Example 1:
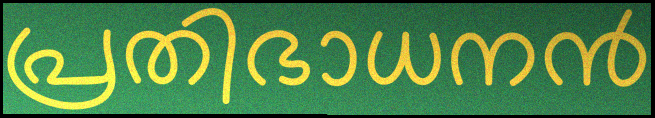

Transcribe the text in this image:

പ്രതിഭാധനൻ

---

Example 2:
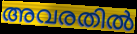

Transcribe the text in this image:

അവരതിൽ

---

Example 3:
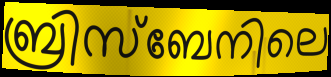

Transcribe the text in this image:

ബ്രിസ്ബേനിലെ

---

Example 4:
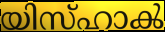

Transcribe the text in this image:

യിസ്ഹാൿ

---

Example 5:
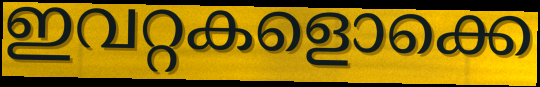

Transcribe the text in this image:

ഇവറ്റകളൊക്കെ